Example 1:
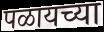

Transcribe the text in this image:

पळायच्या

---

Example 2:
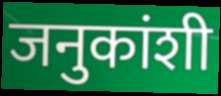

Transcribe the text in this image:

जनुकांशी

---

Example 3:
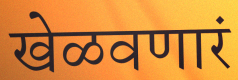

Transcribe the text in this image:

खेळवणारं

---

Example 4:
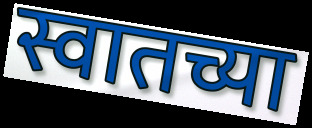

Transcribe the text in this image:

स्वातच्या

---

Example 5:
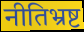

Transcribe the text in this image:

नीतिभ्रष्ट